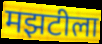
मझटीला